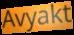
Avyakt